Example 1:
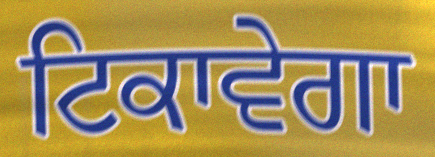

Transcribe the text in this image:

ਟਿਕਾਵੇਗਾ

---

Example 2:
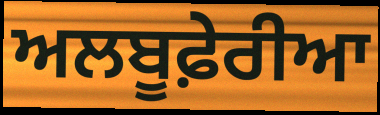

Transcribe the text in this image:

ਅਲਬੂਫ਼ੇਰੀਆ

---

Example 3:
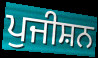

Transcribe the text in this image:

ਪੁਜੀਸ਼ਨ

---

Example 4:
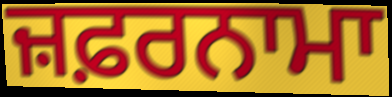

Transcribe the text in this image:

ਜ਼ਫ਼ਰਨਾਮਾ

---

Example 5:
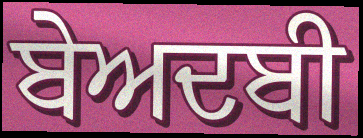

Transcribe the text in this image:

ਬੇਅਦਬੀ